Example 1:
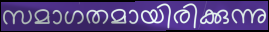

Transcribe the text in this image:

സമാഗതമായിരിക്കുന്നു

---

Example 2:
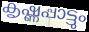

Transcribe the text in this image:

കൃഷ്ണപ്പാട്ടും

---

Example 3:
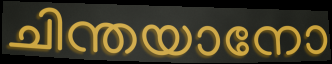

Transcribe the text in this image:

ചിന്തയാനോ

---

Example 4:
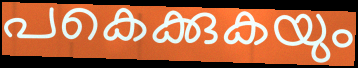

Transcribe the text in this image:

പകെക്കുകയും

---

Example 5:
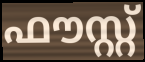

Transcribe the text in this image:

ഫൗസ്റ്റ്